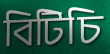
বিটিচি